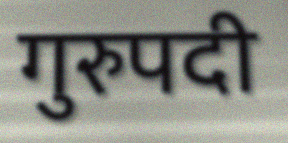
गुरुपदी